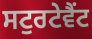
ਸਟੁਰਟੇਵੈਂਟ